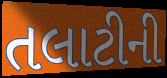
તલાટીની